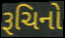
રૂચિનો